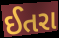
ઈતરા